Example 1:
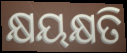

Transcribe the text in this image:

କ୍ଷୟକ୍ଷତି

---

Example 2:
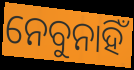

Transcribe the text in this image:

ନେବୁନାହିଁ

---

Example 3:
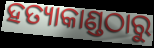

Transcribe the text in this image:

ହତ୍ୟାକାଣ୍ଡଠାରୁ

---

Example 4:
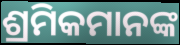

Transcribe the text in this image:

ଶ୍ରମିକମାନଙ୍କ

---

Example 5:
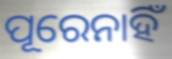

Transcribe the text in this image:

ପୂରେନାହିଁ